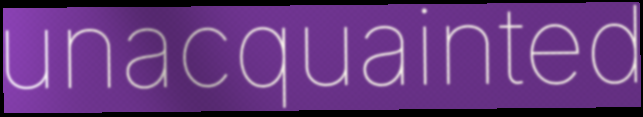
unacquainted